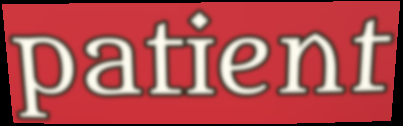
patient